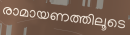
രാമായണത്തിലൂടെ